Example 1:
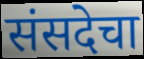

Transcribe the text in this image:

संसदेचा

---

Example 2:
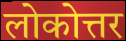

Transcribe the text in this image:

लोकोत्तर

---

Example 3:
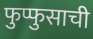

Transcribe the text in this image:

फुप्फुसाची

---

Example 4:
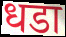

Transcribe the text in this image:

धडा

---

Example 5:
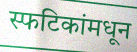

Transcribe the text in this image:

स्फटिकांमधून